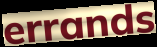
errands